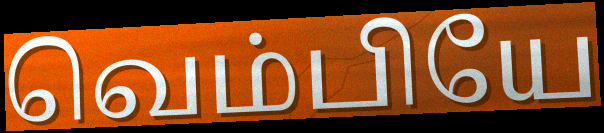
வெம்பியே